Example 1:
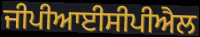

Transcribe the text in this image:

ਜੀਪੀਆਈਸੀਪੀਐਲ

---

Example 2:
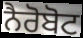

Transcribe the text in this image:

ਨੈਰੋਬੋਟ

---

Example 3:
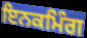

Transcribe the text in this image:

ਇਨਕਮਿੰਗ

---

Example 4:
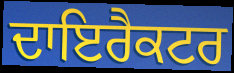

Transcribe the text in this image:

ਦਾਇਰੈਕਟਰ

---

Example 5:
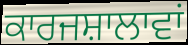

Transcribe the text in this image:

ਕਾਰਜਸ਼ਾਲਾਵਾਂ